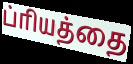
ப்ரியத்தை